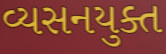
વ્યસનયુક્ત